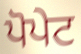
ਪੋਪੇਟ